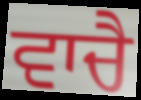
ਵਾਚੈ